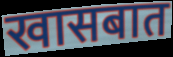
खासबात